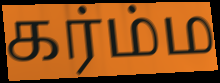
கர்ம்ம